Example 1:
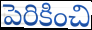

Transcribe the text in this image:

పెరికించి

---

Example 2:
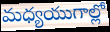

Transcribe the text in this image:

మధ్యయుగాల్లో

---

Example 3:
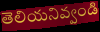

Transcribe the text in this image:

తెలియనివ్వండి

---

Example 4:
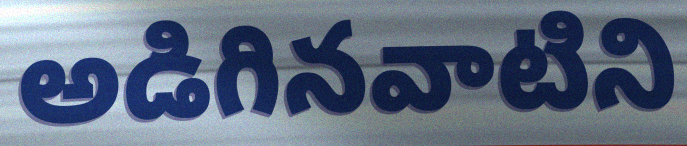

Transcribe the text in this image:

అడిగినవాటిని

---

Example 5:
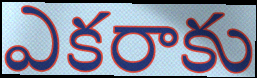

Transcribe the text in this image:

ఎకరాకు